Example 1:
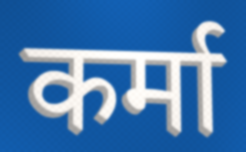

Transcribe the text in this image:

कर्मा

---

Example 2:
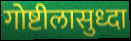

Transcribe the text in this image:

गोष्टीलासुध्दा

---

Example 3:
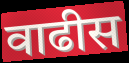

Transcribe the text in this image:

वाढीस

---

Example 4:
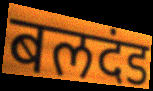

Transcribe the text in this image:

बलदंड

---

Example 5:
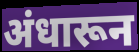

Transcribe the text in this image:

अंधारून